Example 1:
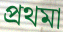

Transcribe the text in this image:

প্ৰথমা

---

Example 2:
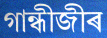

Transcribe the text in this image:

গান্ধীজীৰ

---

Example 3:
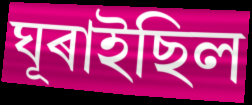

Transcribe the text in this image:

ঘূৰাইছিল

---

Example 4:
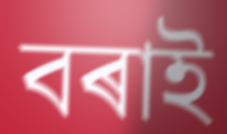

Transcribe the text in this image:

বৰাই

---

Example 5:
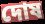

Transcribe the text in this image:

দোষ